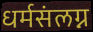
धर्मसंलग्न